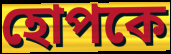
হোপকে